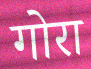
गोरा